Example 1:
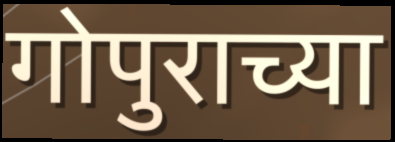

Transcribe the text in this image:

गोपुराच्या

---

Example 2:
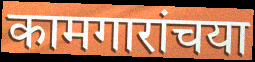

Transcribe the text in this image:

कामगारांचया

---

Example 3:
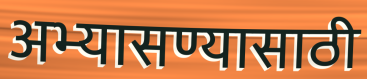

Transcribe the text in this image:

अभ्यासण्यासाठी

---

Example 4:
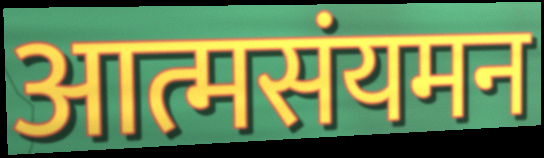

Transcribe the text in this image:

आत्मसंयमन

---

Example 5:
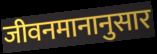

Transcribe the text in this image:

जीवनमानानुसार